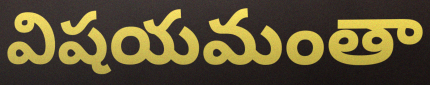
విషయమంతా